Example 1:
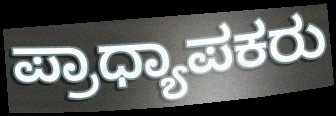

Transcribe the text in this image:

ಪ್ರಾಧ್ಯಾಪಕರು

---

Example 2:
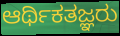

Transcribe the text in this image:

ಆರ್ಥಿಕತಜ್ಞರು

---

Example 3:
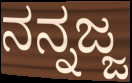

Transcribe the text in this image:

ನನ್ನಜ್ಜ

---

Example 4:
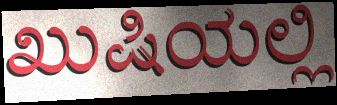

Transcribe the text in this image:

ಖುಷಿಯಲ್ಲಿ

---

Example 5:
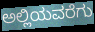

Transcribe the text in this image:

ಅಲ್ಲಿಯವರೆಗು